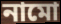
নামো